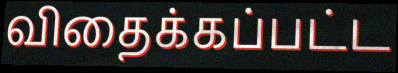
விதைக்கப்பட்ட